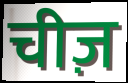
चीज़